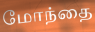
மோந்தை